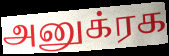
அனுக்ரக